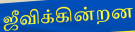
ஜீவிக்கின்றன